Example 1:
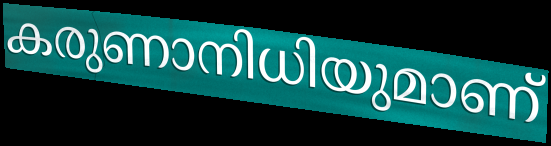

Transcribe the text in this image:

കരുണാനിധിയുമാണ്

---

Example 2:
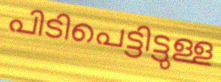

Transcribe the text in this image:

പിടിപെട്ടിട്ടുള്ള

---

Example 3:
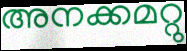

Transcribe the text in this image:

അനക്കമറ്റു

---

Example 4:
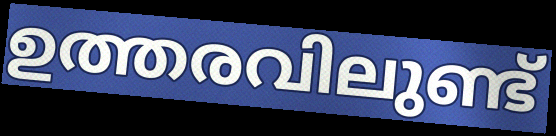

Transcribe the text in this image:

ഉത്തരവിലുണ്ട്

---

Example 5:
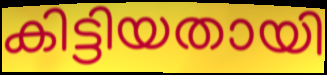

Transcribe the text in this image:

കിട്ടിയതായി